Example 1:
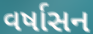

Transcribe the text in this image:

વર્ષાસન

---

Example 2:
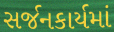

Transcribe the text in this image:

સર્જનકાર્યમાં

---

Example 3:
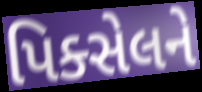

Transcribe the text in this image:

પિક્સેલને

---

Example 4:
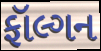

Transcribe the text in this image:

ફૉલ્ગન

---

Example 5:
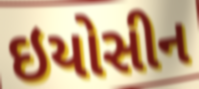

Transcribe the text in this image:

ઇયોસીન